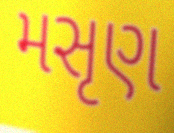
મસૃણ